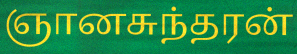
ஞானசுந்தரன்